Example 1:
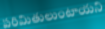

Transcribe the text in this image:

పరిమితులుంటాయని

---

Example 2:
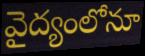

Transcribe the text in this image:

వైద్యంలోనూ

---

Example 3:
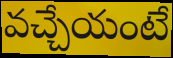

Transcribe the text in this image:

వచ్చేయంటే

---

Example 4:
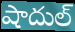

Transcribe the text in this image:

షాదుల్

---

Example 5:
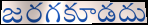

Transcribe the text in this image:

జరగకూడదు